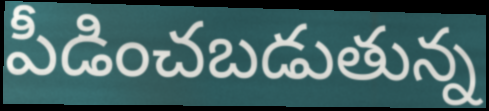
పీడించబడుతున్న